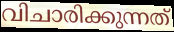
വിചാരിക്കുന്നത്